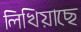
লিখিয়াছে